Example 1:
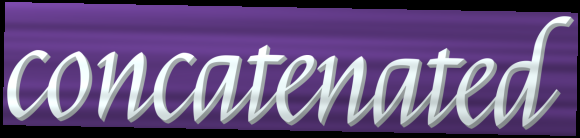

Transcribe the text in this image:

concatenated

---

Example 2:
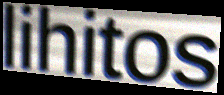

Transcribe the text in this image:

lihitos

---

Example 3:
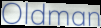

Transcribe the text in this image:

Oldman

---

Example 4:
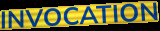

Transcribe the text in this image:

INVOCATION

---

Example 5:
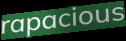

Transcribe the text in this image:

rapacious